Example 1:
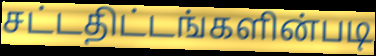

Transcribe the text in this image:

சட்டதிட்டங்களின்படி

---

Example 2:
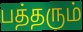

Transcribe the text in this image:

பத்தரும்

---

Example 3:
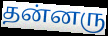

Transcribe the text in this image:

தன்னரு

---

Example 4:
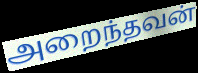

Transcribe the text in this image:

அறைந்தவன்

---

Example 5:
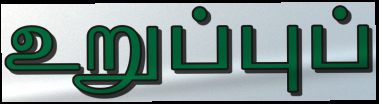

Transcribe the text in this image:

உறுப்புப்